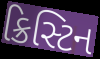
ક્રિસ્ટિન